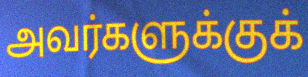
அவர்களுக்குக்